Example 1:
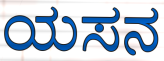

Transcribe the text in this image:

ಯಸನ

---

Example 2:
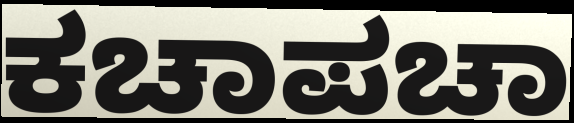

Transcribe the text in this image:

ಕಚಾಪಚಾ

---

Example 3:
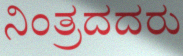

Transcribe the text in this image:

ನಿಂತ್ರದದರು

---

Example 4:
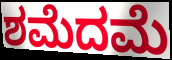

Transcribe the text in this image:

ಶಮೆದಮೆ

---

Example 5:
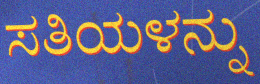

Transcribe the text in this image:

ಸತಿಯಳನ್ನು